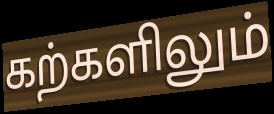
கற்களிலும்